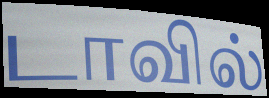
டாவில்